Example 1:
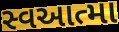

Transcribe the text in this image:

સ્વઆત્મા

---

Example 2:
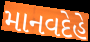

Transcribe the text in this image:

માનવદેહે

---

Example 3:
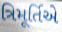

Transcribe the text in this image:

ત્રિમૂર્તિએ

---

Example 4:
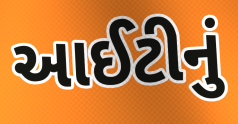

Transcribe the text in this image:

આઈટીનું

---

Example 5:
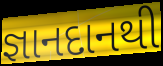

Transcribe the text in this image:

જ્ઞાનદાનથી